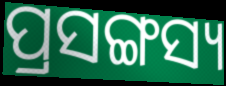
ପ୍ରସଙ୍ଗସ୍ୟ